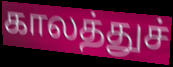
காலத்துச்